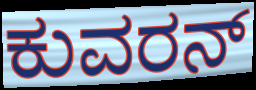
ಕುವರನ್